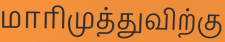
மாரிமுத்துவிற்கு